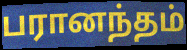
பரானந்தம்